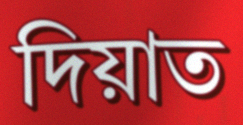
দিয়াত